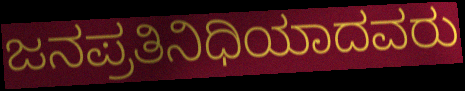
ಜನಪ್ರತಿನಿಧಿಯಾದವರು